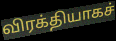
விரக்தியாகச்